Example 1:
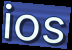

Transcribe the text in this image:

ios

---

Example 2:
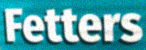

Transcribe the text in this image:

Fetters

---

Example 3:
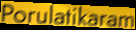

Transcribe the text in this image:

Porulatikaram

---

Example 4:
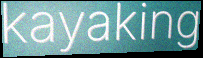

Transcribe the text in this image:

kayaking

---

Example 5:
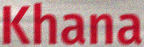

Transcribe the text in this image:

Khana